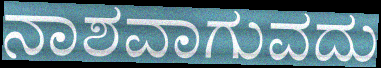
ನಾಶವಾಗುವದು